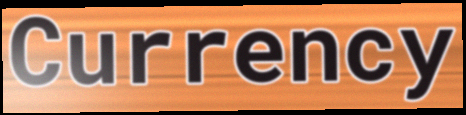
Currency